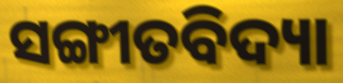
ସଙ୍ଗୀତବିଦ୍ୟା